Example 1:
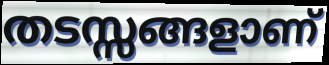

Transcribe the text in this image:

തടസ്സങ്ങളാണ്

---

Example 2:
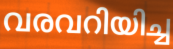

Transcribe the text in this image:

വരവറിയിച്ച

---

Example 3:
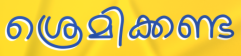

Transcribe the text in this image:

ശ്രെമിക്കണ്ട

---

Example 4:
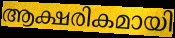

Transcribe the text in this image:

ആക്ഷരികമായി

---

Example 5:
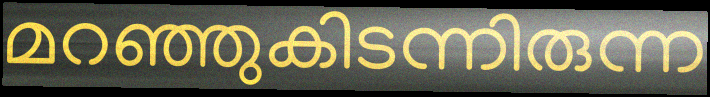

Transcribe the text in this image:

മറഞ്ഞുകിടന്നിരുന്ന